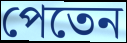
পেতেন